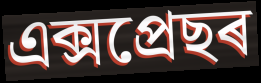
এক্সপ্ৰেছৰ